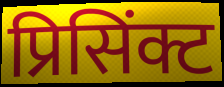
प्रिसिंक्ट